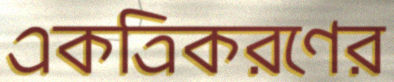
একত্রিকরণের